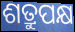
ଶତ୍ରୁପକ୍ଷ